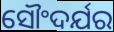
ସୌଂଦର୍ଯର